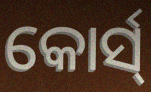
କୋର୍ସ୍